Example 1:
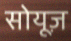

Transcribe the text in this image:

सोयूज़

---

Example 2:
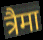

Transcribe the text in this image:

त्रैमा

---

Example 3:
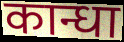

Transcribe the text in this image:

कान्धा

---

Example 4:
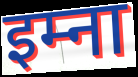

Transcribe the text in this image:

इम्ना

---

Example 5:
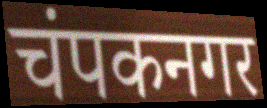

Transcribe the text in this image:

चंपकनगर